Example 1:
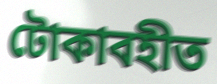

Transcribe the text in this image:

টোকাবহীত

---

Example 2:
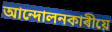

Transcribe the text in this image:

আন্দোলনকাৰীয়ে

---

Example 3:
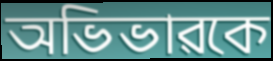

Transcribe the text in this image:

অভিভাৱকে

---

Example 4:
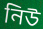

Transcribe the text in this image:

নিউ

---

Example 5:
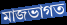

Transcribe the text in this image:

মাজভাগত